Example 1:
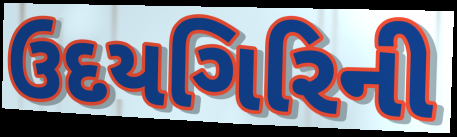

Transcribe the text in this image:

ઉદયગિરિની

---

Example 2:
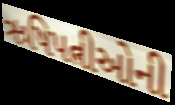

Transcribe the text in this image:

ઋષિપત્નીઓની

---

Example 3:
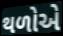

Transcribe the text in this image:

થળોએ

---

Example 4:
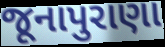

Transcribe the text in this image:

જૂનાપુરાણા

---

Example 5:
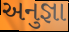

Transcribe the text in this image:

અનુજ્ઞા